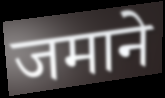
जमाने